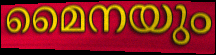
മൈനയും